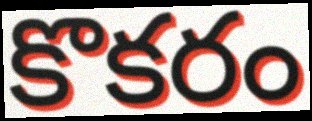
కొకరం